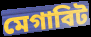
মেগাবিট